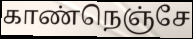
காண்நெஞ்சே